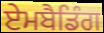
ਏਮਬੈਡਿੰਗ